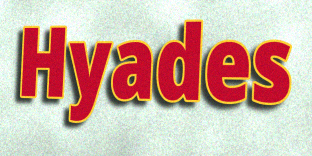
Hyades